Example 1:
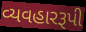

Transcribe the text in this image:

વ્યવહારરૂપી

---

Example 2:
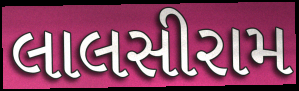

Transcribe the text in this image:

લાલસીરામ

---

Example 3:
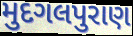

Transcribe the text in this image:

મુદગલપુરાણ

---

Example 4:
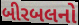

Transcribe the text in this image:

બીરબલનો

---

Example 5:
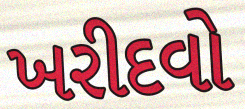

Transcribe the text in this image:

ખરીદવો